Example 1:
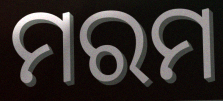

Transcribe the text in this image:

ମରମ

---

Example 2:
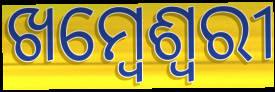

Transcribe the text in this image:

ଖମ୍ବେଶ୍ଵରୀ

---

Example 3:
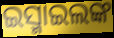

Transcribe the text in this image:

ଇସ୍ମାଇଲଙ୍କ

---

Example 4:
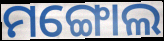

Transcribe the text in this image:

ମଙ୍ଗୋଲ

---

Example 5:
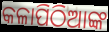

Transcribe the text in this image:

କଳାପିଠିଆଙ୍କ